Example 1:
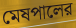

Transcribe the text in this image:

মেষপালের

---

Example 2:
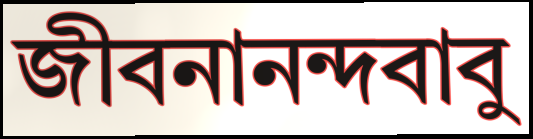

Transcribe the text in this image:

জীবনানন্দবাবু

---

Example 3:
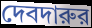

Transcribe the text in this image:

দেবদারুর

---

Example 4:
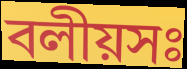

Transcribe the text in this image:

বলীয়সঃ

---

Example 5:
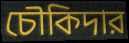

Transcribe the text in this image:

চৌকিদার